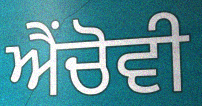
ਐਂਚੋਵੀ